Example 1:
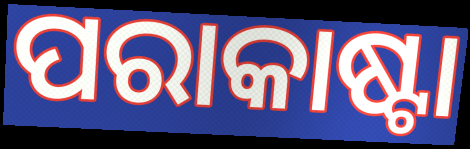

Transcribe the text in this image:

ପରାକାଷ୍ଟା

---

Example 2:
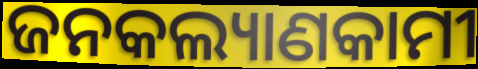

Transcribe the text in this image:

ଜନକଲ୍ୟାଣକାମୀ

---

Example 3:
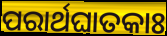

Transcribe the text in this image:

ପରାର୍ଥଘାତକାଃ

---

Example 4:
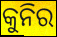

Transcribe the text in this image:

କୁନିର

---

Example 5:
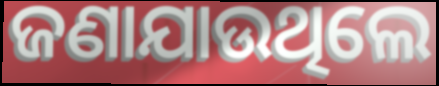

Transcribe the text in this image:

ଜଣାଯାଉଥିଲେ